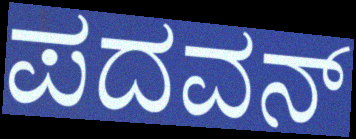
ಪದವನ್